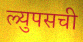
ल्युपसची